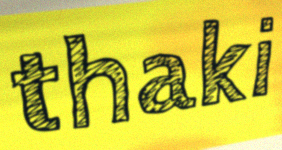
thaki